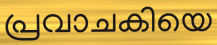
പ്രവാചകിയെ